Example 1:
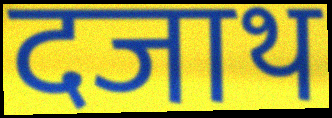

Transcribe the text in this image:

दजाथ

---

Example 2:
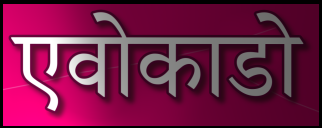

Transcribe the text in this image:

एवोकाडो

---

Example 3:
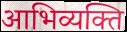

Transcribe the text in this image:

आभिव्यक्ति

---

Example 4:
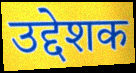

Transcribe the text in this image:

उद्देशक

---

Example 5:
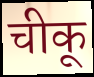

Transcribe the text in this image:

चीकू